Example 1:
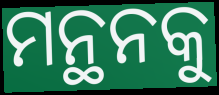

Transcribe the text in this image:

ମନ୍ଥନକୁ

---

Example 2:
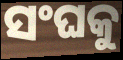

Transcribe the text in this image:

ସଂଘକୁ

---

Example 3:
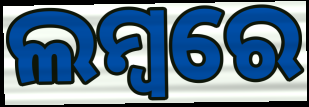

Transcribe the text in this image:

ଲମ୍ବରେ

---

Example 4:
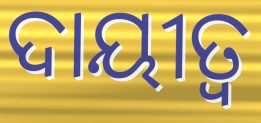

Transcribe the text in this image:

ଦାୟୀତ୍ୱ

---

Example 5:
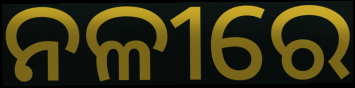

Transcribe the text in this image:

ନଳୀରେ